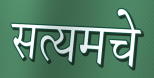
सत्यमचे